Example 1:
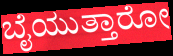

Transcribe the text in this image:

ಬೈಯುತ್ತಾರೋ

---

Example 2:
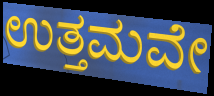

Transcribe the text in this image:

ಉತ್ತಮವೇ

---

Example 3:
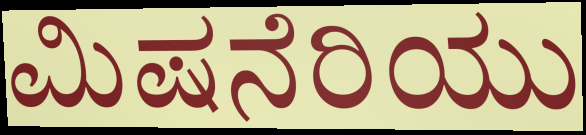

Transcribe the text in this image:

ಮಿಷನೆರಿಯು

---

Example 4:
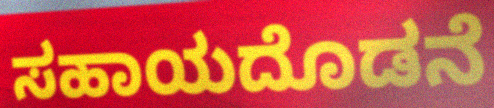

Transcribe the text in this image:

ಸಹಾಯದೊಡನೆ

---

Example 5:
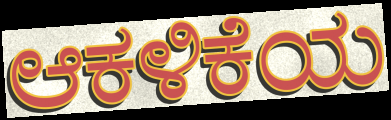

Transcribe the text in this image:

ಆಕಳಿಕೆಯ